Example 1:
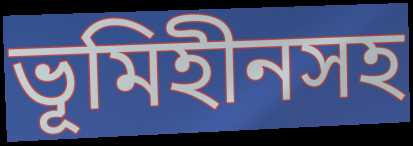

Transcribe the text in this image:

ভূমিহীনসহ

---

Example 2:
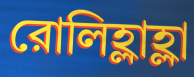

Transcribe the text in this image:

রোলিহ্লাহ্লা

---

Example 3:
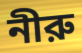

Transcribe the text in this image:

নীরু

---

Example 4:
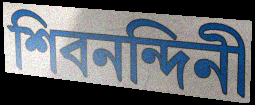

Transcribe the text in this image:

শিবনন্দিনী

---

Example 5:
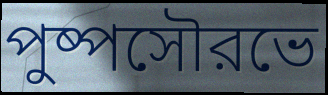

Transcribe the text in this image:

পুষ্পসৌরভে